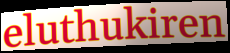
eluthukiren